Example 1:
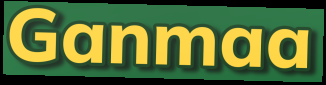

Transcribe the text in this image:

Ganmaa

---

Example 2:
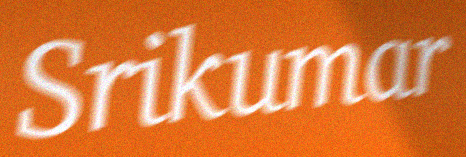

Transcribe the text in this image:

Srikumar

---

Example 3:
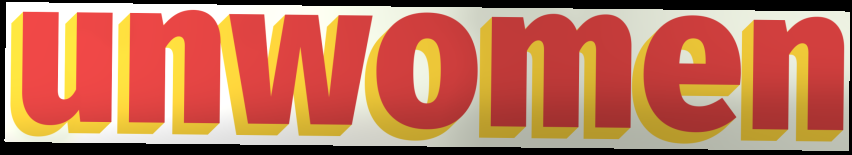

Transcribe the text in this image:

unwomen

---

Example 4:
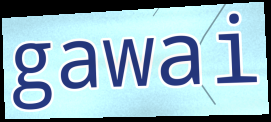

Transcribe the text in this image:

gawai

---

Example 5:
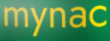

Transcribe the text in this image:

mynac